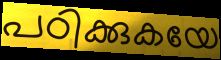
പഠിക്കുകയേ